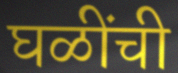
घळींची